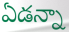
ఏడన్నా